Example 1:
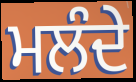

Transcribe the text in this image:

ਮਲੰਦੇ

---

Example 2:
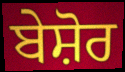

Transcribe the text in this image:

ਬੇਸ਼ੋਰ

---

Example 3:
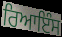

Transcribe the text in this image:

ਰਿਆਇੰਸ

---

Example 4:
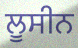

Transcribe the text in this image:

ਲੂਸੀਨ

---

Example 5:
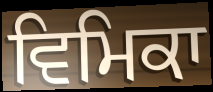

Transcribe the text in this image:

ਵਿਮਿਕਾ